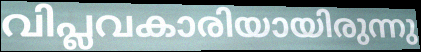
വിപ്ലവകാരിയായിരുന്നു